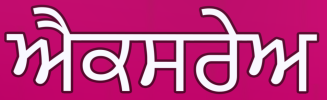
ਐਕਸਰੇਅ